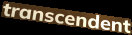
transcendent